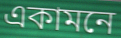
একামনে